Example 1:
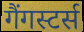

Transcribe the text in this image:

गैंगस्टर्स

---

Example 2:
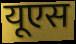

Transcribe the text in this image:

यूएस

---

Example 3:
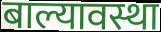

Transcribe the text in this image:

बाल्यावस्था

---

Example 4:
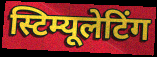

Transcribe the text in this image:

स्टिम्यूलेटिंग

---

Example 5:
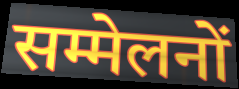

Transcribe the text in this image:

सम्मेलनों